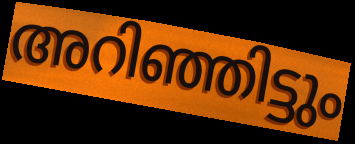
അറിഞ്ഞിട്ടും